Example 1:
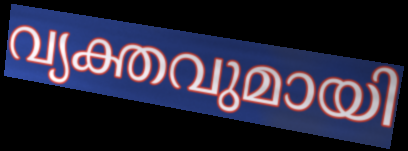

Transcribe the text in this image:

വ്യക്തവുമായി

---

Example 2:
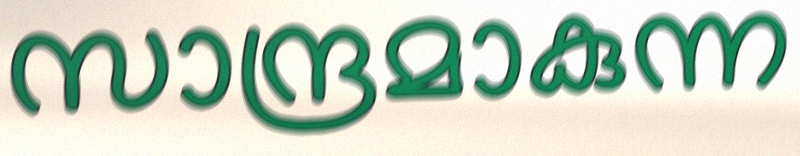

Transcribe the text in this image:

സാന്ദ്രമാകുന്ന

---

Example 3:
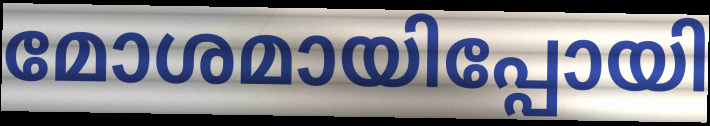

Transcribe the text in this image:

മോശമായിപ്പോയി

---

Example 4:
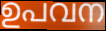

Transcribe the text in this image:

ഉപവന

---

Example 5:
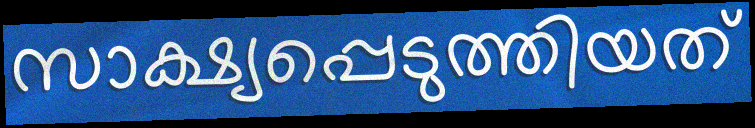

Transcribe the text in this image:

സാക്ഷ്യപ്പെടുത്തിയത്